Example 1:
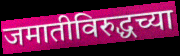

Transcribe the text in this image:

जमातीविरुद्धच्या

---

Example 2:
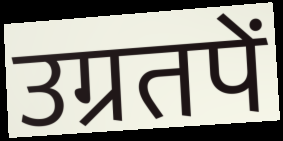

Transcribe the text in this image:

उग्रतपें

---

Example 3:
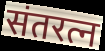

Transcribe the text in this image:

संतरत्न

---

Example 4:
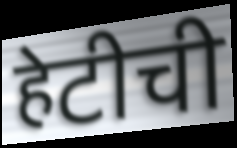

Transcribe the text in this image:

हेटीची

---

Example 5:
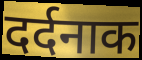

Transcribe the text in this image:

दर्दनाक